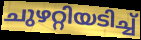
ചുഴറ്റിയടിച്ച്